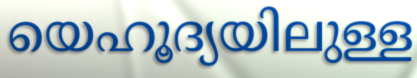
യെഹൂദ്യയിലുള്ള